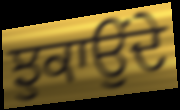
ਝੁਕਾਉੰਦੇ